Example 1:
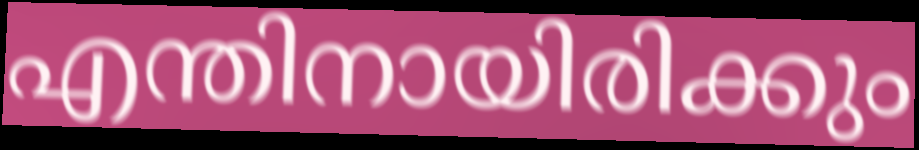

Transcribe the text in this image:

എന്തിനായിരിക്കും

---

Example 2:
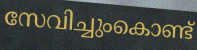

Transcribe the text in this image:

സേവിച്ചുംകൊണ്ട്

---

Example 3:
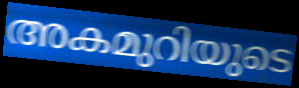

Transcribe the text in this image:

അകമുറിയുടെ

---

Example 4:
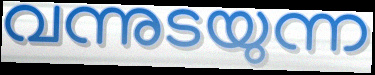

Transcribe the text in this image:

വന്നുടയുന്ന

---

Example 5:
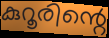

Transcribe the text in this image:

കുറൂരിന്റെ